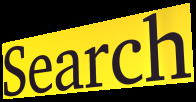
Search